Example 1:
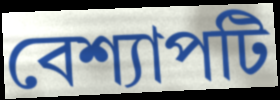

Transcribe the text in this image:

বেশ্যাপটি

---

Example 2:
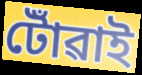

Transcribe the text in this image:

টোঁৱাই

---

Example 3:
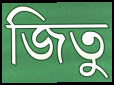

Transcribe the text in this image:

জিতু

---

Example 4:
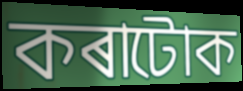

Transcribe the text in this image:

কৰাটোক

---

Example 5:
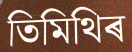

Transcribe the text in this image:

তিমিথিৰ